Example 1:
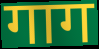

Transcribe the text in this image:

गाग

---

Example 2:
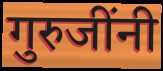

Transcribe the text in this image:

गुरुजींनी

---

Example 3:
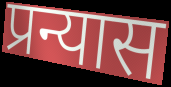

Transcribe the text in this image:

प्रन्यास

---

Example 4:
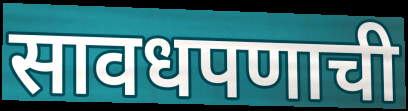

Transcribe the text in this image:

सावधपणाची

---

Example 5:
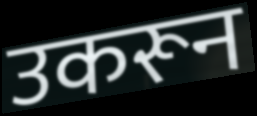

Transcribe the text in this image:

उकरून